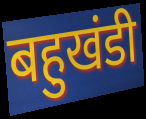
बहुखंडी